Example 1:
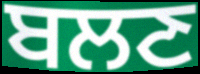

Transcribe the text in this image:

ਬਲਣ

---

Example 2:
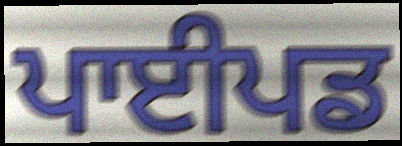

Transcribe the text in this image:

ਪਾਈਪਡ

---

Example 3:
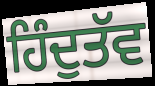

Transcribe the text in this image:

ਹਿੰਦੁਤੱਵ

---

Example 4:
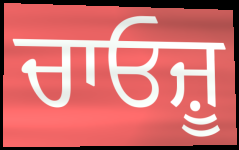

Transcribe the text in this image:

ਚਾਓਜ਼ੂ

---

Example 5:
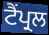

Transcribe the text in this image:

ਟੈਂਪ੍ਰਲ